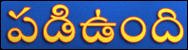
పడిఉంది